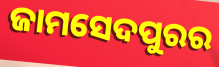
ଜାମସେଦପୁରର